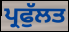
ਪ੍ਰਫੁੱਲਤ